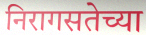
निरागसतेच्या